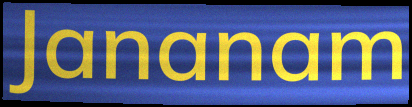
Jananam